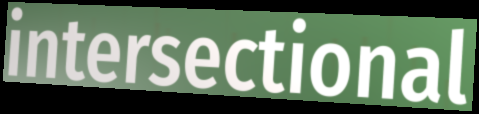
intersectional